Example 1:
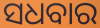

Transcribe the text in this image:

ସଧବାର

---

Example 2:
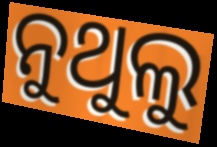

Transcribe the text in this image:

ନୁଥୁଲୁ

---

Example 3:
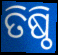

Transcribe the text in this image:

ତିଷ୍ଠି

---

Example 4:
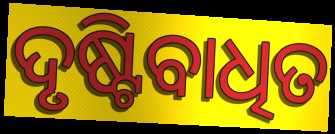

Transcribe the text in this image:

ଦୃଷ୍ଟିବାଧିତ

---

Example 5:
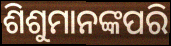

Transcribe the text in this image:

ଶିଶୁମାନଙ୍କପରି